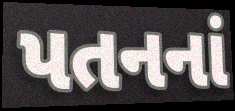
પતનનાં